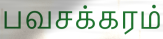
பவசக்கரம்